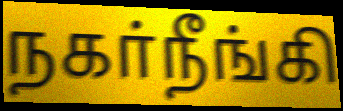
நகர்நீங்கி